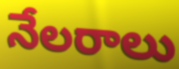
నేలరాలు